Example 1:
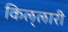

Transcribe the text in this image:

किल्लारी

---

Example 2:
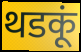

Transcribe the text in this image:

थडकूं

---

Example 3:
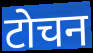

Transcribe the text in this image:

टोचन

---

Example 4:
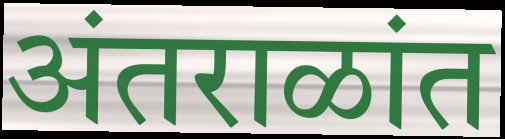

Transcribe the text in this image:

अंतराळांत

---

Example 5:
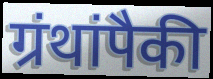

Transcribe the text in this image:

ग्रंथांपैकी